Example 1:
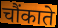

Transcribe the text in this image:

चौंकाते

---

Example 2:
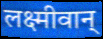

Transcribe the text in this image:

लक्ष्मीवान्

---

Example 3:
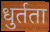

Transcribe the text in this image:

धुर्तता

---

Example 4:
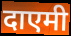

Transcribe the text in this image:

दाएमी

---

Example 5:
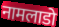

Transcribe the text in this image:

नामलाडो